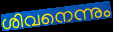
ശിവനെന്നും